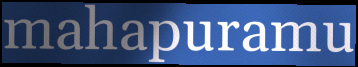
mahapuramu